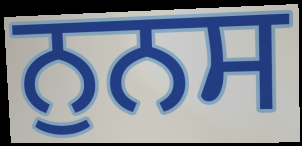
ਨੁਨਸ